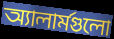
অ্যালার্মগুলো